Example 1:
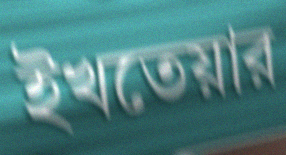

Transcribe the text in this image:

ইখতেয়ার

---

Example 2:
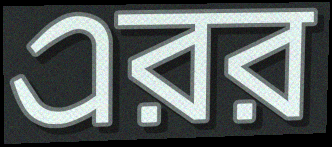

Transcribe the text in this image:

এরর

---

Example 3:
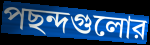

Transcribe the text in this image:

পছন্দগুলোর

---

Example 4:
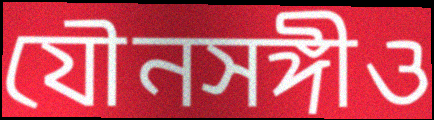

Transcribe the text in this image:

যৌনসঙ্গীও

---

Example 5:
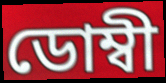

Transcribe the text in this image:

ডোম্বী